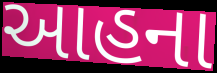
આહના